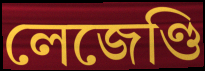
লেজেণ্ডি